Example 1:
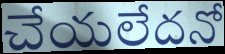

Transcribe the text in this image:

చేయలేదనో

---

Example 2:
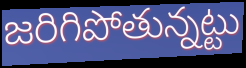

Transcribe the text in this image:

జరిగిపోతున్నట్టు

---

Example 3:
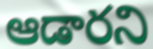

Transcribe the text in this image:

ఆడారని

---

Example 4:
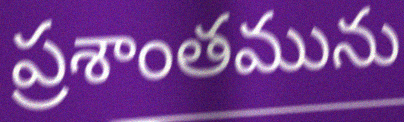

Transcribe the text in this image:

ప్రశాంతమును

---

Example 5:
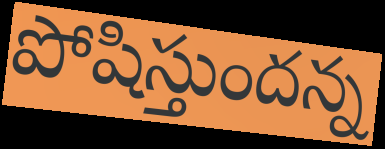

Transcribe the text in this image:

పోషిస్తుందన్న